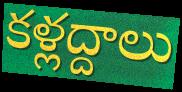
కళ్లద్దాలు